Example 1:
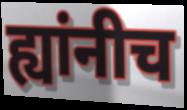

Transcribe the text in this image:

ह्यांनीच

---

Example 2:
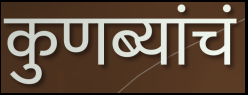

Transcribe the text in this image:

कुणब्यांचं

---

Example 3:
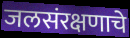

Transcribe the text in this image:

जलसंरक्षणाचे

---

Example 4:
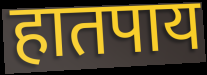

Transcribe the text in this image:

हातपाय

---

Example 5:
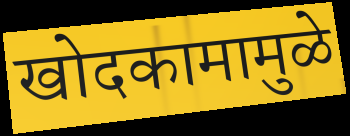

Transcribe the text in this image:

खोदकामामुळे